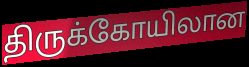
திருக்கோயிலான